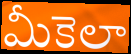
మీకెలా